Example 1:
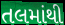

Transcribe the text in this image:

તલમાંથી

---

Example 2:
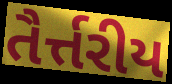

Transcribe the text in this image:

તૈર્ત્તરીય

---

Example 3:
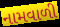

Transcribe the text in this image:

નામવાળી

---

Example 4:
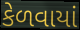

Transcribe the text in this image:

કેળવાયાં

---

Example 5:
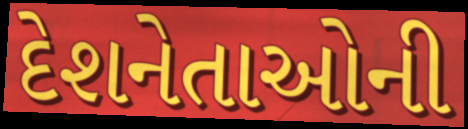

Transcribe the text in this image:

દેશનેતાઓની